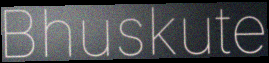
Bhuskute